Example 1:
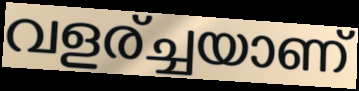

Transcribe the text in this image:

വളര്ച്ചയാണ്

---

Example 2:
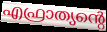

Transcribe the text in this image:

എഫ്രാത്യന്റെ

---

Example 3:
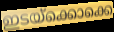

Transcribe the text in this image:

ഇടയ്ക്കൊക്കെ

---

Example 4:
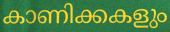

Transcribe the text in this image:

കാണിക്കകളും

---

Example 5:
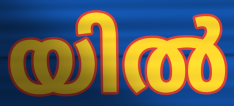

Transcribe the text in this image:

യിൽ